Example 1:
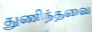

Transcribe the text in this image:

துணிந்தவை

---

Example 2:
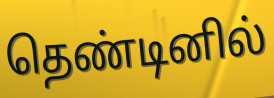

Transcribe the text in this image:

தெண்டினில்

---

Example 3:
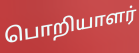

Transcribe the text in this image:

பொறியாளர்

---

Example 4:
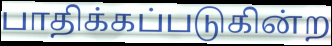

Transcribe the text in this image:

பாதிக்கப்படுகின்ற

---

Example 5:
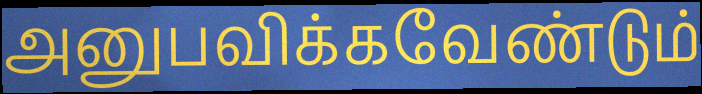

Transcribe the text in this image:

அனுபவிக்கவேண்டும்